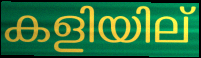
കളിയില്